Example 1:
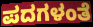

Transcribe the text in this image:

ಪದಗಳಂತೆ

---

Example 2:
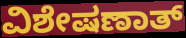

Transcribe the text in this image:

ವಿಶೇಷಣಾತ್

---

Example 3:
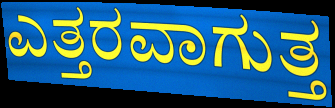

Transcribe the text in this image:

ಎತ್ತರವಾಗುತ್ತ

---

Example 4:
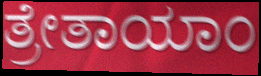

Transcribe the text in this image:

ತ್ರೇತಾಯಾಂ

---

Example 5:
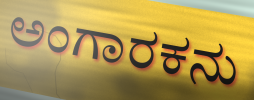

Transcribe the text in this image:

ಅಂಗಾರಕನು